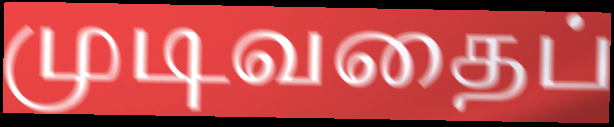
முடிவதைப்